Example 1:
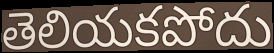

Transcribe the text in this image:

తెలియకపోదు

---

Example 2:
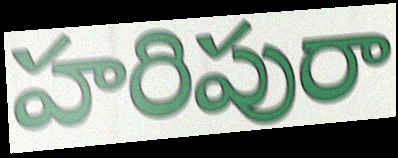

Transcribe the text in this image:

హరిపురా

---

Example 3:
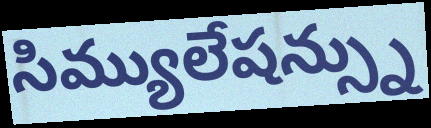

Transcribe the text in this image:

సిమ్యులేషన్స్ను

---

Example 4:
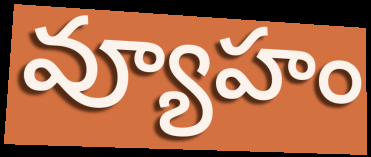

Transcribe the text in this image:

వ్యూహం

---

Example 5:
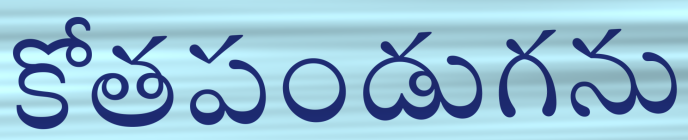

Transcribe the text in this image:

కోతపండుగను